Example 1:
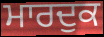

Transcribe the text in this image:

ਮਾਰਦੁਕ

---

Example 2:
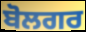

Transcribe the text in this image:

ਬੋਲਗਰ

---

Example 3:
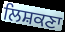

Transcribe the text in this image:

ਲਿਸ਼ਕਣਾ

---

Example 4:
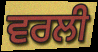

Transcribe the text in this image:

ਵਰਲੀ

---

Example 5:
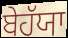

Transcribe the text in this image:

ਬੇਹੱਯਾ